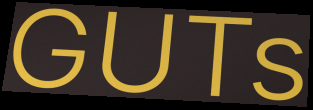
GUTs